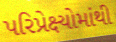
પરિપ્રેક્ષ્યોમાંથી